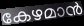
കേഴമാൻ